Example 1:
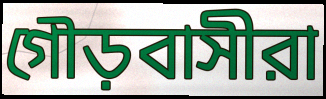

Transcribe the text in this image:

গৌড়বাসীরা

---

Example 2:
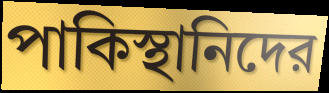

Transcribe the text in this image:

পাকিস্থানিদের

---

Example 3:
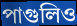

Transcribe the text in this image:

পাগুলিও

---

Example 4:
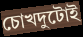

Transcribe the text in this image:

চোখদুটোই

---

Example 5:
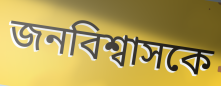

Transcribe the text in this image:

জনবিশ্বাসকে